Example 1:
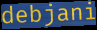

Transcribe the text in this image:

debjani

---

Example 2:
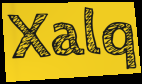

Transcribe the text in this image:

Xalq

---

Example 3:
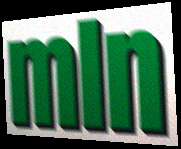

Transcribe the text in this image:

mln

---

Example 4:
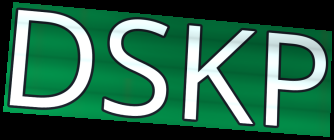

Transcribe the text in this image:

DSKP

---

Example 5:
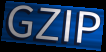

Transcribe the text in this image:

GZIP